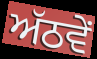
ਅੱਠਵੇਂ